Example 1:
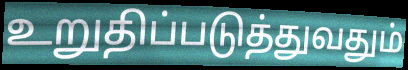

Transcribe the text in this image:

உறுதிப்படுத்துவதும்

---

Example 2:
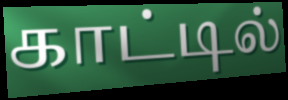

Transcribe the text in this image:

காட்டில்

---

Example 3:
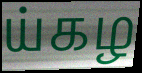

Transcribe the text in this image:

ய்கழ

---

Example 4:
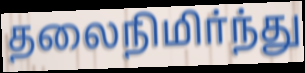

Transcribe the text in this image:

தலைநிமிர்ந்து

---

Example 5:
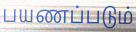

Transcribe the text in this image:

பயணப்படும்